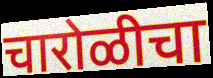
चारोळीचा